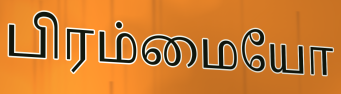
பிரம்மையோ